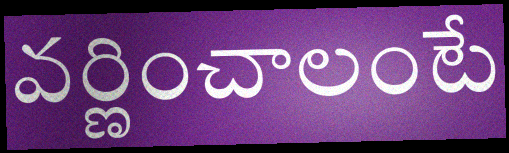
వర్ణించాలంటే